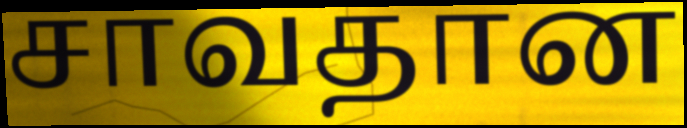
சாவதான